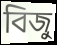
বিজু